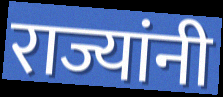
राज्यांनी